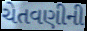
ચેતવણીની